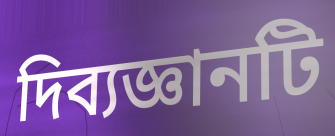
দিব্যজ্ঞানটি